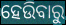
ହେଉିବାରୁ